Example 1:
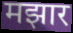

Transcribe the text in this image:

मझार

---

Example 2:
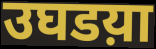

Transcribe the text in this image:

उघडय़ा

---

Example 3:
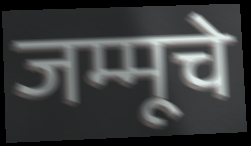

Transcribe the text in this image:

जम्मूचे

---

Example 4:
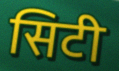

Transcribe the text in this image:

सिटी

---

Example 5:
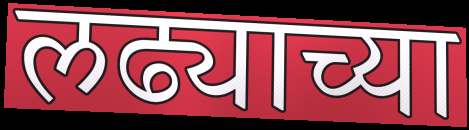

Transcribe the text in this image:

लढ्याच्या